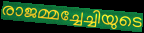
രാജമ്മച്ചേച്ചിയുടെ